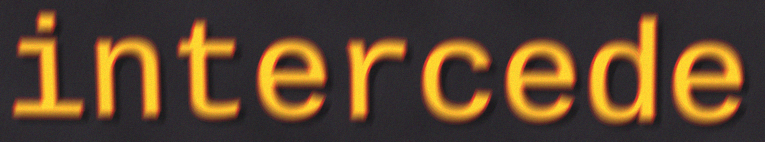
intercede